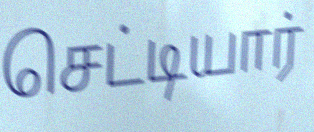
செட்டியார்